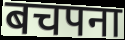
बचपना